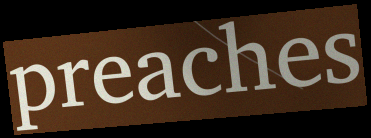
preaches